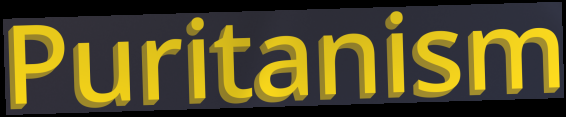
Puritanism